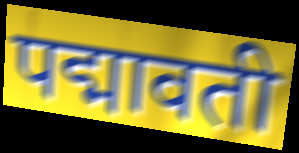
पद्मावती